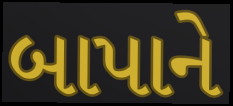
બાપાને